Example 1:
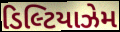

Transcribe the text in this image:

ડિલ્ટિયાઝેમ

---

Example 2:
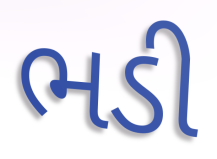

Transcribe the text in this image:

ભડી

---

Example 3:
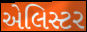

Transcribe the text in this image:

એલિસ્ટર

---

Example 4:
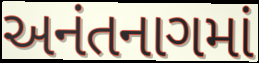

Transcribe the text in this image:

અનંતનાગમાં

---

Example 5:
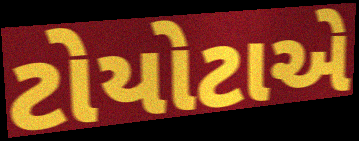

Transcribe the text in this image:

ટોયોટાએ